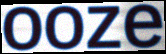
ooze